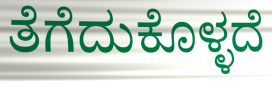
ತೆಗೆದುಕೊಳ್ಳದೆ